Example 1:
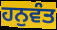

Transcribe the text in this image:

ਹਨੁਵੰਤ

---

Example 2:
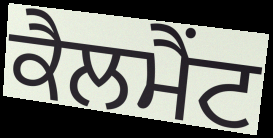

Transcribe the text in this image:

ਕੈਲਮੈਂਟ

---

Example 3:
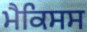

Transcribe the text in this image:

ਮੈਕਿਸਸ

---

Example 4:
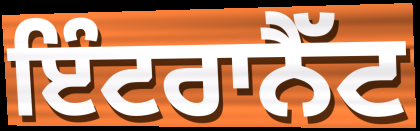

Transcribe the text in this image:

ਇੰਟਰਾਨੈੱਟ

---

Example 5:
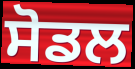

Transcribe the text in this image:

ਸੋਡਲ